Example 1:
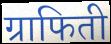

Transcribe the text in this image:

ग्राफिती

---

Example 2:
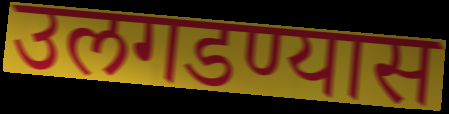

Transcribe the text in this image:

उलगडण्यास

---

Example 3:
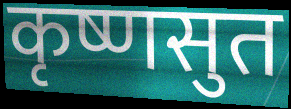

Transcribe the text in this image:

कृष्णसुत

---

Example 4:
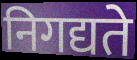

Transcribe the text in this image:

निगद्यते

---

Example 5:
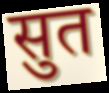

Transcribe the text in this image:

सुत